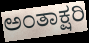
ಅಂತಾಕ್ಷರಿ